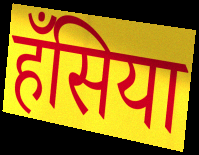
हँसिया